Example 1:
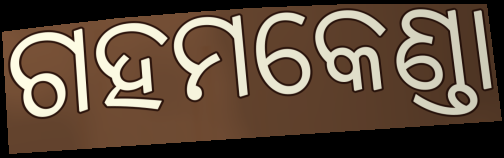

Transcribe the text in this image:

ଗହମକେଣ୍ଡା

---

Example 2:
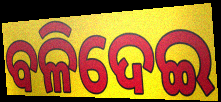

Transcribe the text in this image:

ବଳିଦେଇ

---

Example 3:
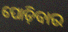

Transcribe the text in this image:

ପୋଡ଼ିବାର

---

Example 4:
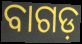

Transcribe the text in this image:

ବାଗଡ଼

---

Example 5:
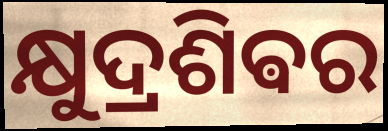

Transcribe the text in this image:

କ୍ଷୁଦ୍ରଶିଵର